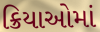
ક્રિયાઓમાં